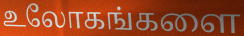
உலோகங்களை